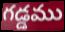
గడ్డము